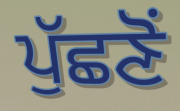
ਪੁੱਛਣੋਂ